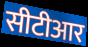
सीटीआर